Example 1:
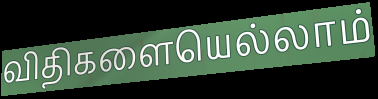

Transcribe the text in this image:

விதிகளையெல்லாம்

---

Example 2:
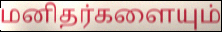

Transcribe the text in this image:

மனிதர்களையும்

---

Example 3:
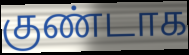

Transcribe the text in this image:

குண்டாக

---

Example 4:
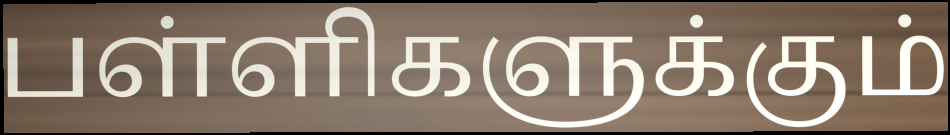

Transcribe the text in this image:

பள்ளிகளுக்கும்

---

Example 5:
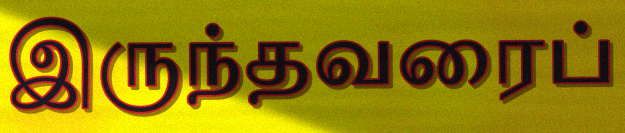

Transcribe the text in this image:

இருந்தவரைப்